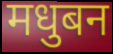
मधुबन